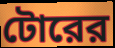
টোরের